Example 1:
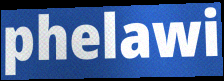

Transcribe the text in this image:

phelawi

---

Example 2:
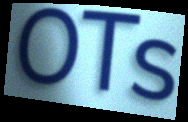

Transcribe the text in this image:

OTs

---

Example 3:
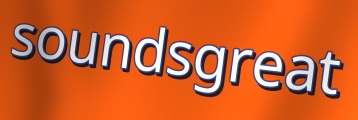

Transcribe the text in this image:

soundsgreat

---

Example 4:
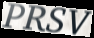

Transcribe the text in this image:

PRSV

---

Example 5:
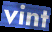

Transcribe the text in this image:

vint